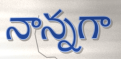
నాన్నగా